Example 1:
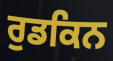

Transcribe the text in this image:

ਰੁਡਕਿਨ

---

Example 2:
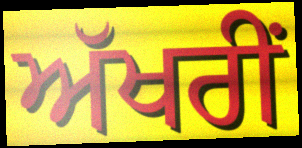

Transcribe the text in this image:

ਅੱਖਰੀਂ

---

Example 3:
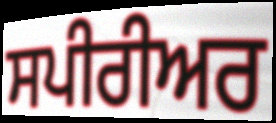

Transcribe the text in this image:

ਸਪੀਰੀਅਰ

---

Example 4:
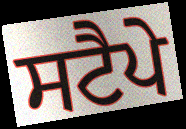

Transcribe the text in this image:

ਸਟੈਪੇ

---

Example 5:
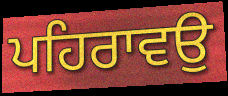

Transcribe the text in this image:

ਪਹਿਰਾਵਉ